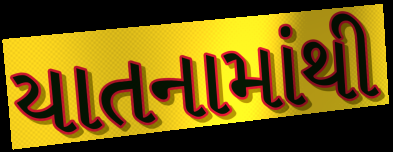
યાતનામાંથી